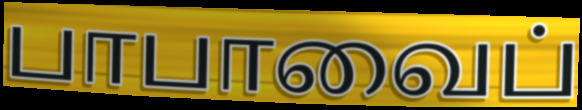
பாபாவைப்